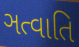
ઞત્વાતિ